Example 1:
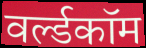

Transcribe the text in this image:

वर्ल्डकॉम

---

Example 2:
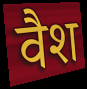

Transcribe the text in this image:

वैश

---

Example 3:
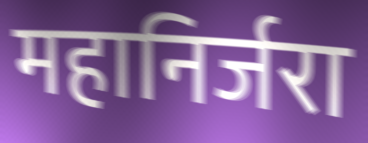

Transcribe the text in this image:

महानिर्जरा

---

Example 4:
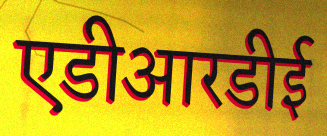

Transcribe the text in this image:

एडीआरडीई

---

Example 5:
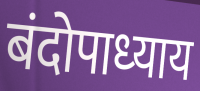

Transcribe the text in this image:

बंदोपाध्‍याय